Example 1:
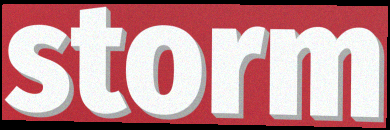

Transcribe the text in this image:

storm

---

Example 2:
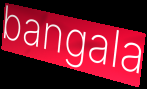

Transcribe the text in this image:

bangala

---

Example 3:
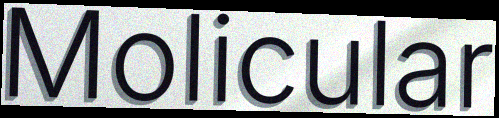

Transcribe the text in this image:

Molicular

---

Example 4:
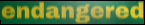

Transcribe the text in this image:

endangered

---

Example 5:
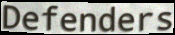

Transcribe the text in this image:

Defenders